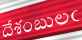
దేశంబులఁ